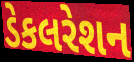
ડેકલરેશન